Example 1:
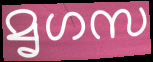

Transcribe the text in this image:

മൃഗസ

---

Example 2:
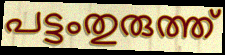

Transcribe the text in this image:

പട്ടംതുരുത്ത്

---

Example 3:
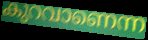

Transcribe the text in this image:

കുറവാണെന്ന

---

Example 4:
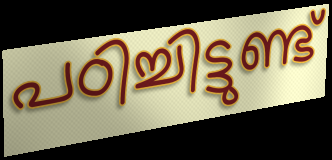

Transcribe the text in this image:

പഠിച്ചിട്ടുണ്ട്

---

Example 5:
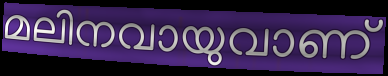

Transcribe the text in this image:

മലിനവായുവാണ്